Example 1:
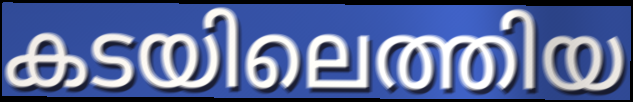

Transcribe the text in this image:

കടയിലെത്തിയ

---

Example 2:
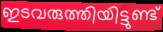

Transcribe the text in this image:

ഇടവരുത്തിയിട്ടുണ്ട്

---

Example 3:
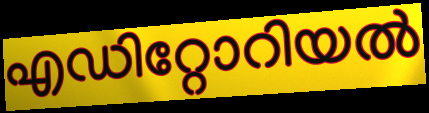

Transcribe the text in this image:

എഡിറ്റോറിയൽ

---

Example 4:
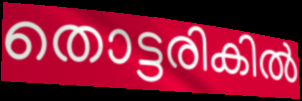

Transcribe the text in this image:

തൊട്ടരികിൽ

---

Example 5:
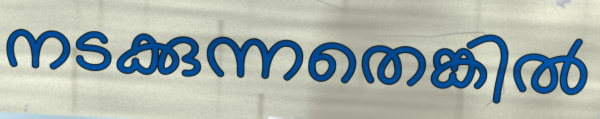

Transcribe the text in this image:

നടക്കുന്നതെങ്കിൽ